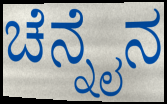
ಚೆನ್ನೈನ